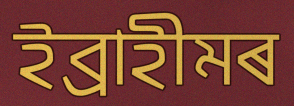
ইব্ৰাহীমৰ